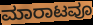
ಮಾರಾಟವೂ